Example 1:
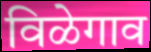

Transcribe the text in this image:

विळेगाव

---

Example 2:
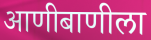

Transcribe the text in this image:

आणीबाणीला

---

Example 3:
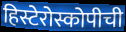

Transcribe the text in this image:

हिस्टेरोस्कोपीची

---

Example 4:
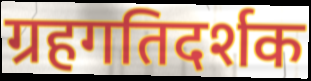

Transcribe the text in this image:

ग्रहगतिदर्शक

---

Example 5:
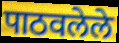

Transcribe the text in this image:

पाठवलेले